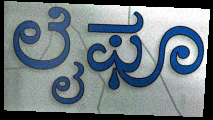
ಲೈಫೂ